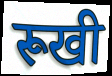
रूखी